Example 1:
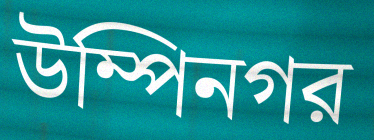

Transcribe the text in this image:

উম্পিনগর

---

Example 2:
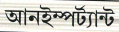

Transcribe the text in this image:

আনইম্পর্ট্যান্ট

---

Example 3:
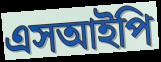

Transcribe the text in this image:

এসআইপি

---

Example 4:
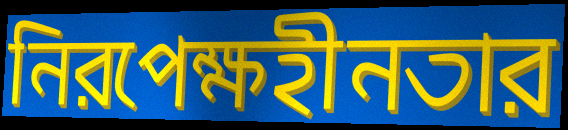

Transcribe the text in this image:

নিরপেক্ষহীনতার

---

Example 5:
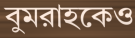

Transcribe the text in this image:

বুমরাহকেও